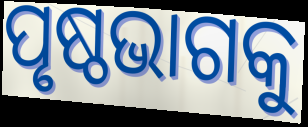
ପୃଷ୍ଠଭାଗକୁ